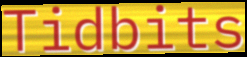
Tidbits